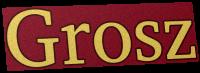
Grosz